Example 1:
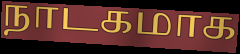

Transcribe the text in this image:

நாடகமாக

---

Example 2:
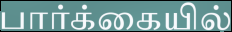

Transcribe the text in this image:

பார்க்கையில்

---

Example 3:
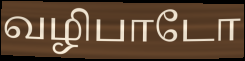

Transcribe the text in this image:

வழிபாடோ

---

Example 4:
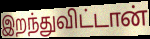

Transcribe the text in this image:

இறந்துவிட்டான்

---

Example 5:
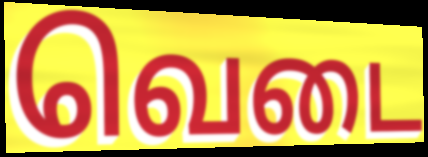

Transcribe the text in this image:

வெடை